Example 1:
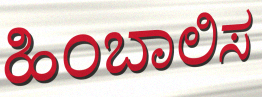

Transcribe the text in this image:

ಹಿಂಬಾಲಿಸ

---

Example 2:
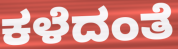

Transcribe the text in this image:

ಕಳೆದಂತೆ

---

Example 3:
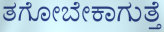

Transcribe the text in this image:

ತಗೋಬೇಕಾಗುತ್ತೆ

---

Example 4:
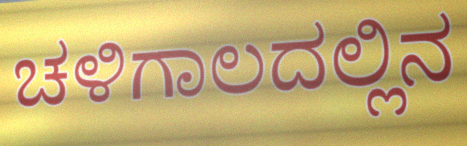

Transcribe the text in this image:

ಚಳಿಗಾಲದಲ್ಲಿನ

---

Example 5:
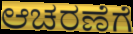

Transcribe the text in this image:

ಆಚರಣೆಗೆ